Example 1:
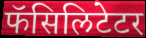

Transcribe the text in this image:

फॅसिलिटेटर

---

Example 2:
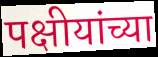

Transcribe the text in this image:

पक्षीयांच्या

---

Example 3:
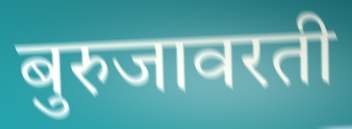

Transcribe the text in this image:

बुरुजावरती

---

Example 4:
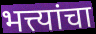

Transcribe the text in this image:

भत्त्यांचा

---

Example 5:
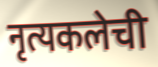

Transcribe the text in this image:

नृत्यकलेची